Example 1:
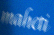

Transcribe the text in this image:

maheti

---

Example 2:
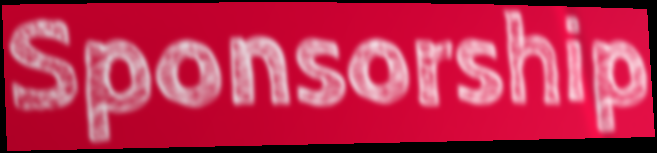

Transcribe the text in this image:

Sponsorship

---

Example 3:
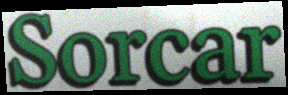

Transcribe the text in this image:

Sorcar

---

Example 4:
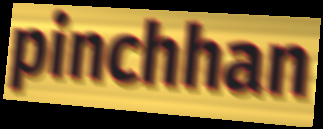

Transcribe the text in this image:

pinchhan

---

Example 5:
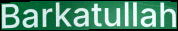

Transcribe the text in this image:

Barkatullah